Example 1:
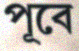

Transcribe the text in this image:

পূবে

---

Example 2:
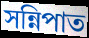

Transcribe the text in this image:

সন্নিপাত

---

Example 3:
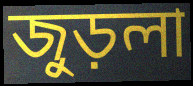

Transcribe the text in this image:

জুড়লা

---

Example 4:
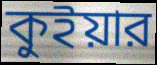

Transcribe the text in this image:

কুইয়ার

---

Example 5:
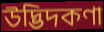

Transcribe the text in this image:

উদ্ভিদকণা